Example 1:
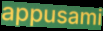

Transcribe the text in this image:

appusami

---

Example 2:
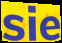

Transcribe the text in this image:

sie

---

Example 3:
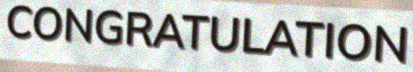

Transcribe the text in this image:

CONGRATULATION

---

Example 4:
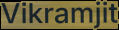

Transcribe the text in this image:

Vikramjit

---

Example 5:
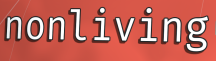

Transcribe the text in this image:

nonliving